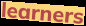
learners